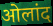
ओलांद